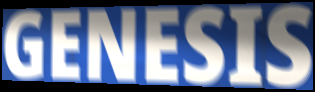
GENESIS